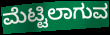
ಮೆಟ್ಟಿಲಾಗುವ